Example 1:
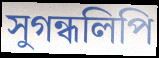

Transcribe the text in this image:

সুগন্ধলিপি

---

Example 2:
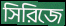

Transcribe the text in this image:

সিরিজে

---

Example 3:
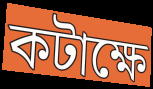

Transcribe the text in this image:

কটাক্ষে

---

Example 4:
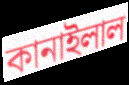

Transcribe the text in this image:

কানাইলাল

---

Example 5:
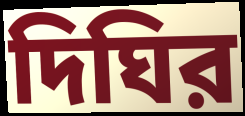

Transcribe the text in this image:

দিঘির